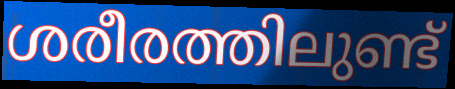
ശരീരത്തിലുണ്ട്